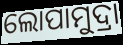
ଲୋପାମୁଦ୍ରା